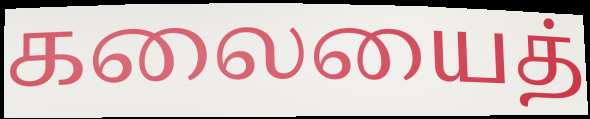
கலையைத்